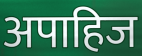
अपाहिज